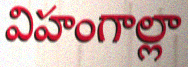
విహంగాల్లా